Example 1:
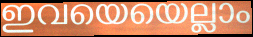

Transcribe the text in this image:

ഇവയെയെല്ലാം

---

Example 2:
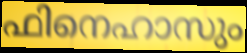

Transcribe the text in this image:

ഫിനെഹാസും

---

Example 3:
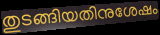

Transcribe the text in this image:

തുടങ്ങിയതിനുശേഷം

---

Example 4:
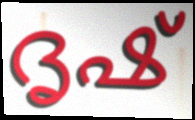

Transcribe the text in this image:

ദൃഷ്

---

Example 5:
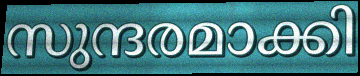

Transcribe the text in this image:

സുന്ദരമാക്കി